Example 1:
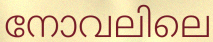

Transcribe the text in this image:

നോവലിലെ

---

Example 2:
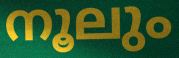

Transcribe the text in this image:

നൂലും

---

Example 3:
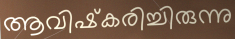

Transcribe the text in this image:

ആവിഷ്‌കരിച്ചിരുന്നു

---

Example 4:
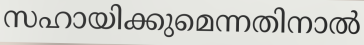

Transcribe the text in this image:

സഹായിക്കുമെന്നതിനാൽ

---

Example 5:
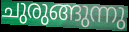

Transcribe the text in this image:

ചുരുങ്ങുന്നു